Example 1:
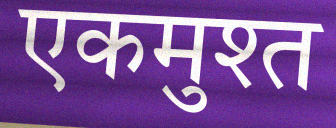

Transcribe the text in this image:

एकमुश्त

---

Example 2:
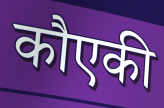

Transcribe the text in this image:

कौएकी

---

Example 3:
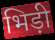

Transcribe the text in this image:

भिड़ी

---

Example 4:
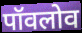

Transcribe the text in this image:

पॉवलोव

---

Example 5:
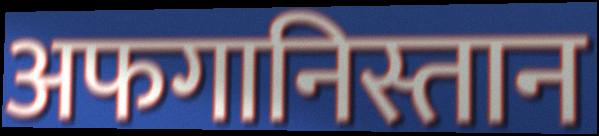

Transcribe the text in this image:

अफगानिस्तान